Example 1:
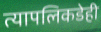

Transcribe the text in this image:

त्यापलिकडेही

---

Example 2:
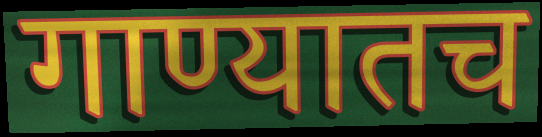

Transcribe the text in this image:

गाण्यातच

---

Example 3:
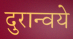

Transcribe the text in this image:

दुरान्वये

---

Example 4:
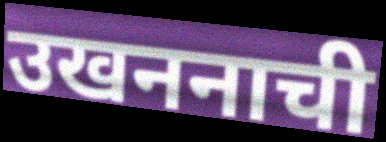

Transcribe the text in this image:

उखननाची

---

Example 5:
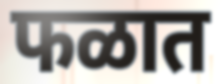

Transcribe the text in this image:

फळात